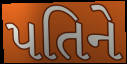
પતિને